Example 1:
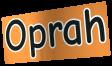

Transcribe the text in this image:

Oprah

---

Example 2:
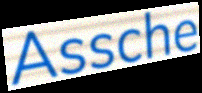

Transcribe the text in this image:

Assche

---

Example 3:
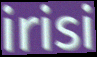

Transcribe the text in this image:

irisi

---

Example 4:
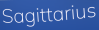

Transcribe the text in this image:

Sagittarius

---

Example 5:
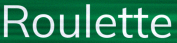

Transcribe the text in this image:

Roulette